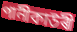
পানীকাউৰী